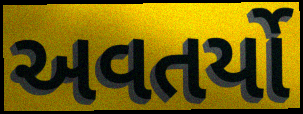
અવતર્યો